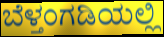
ಬೆಳ್ತಂಗಡಿಯಲ್ಲಿ